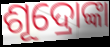
ଶୂଦ୍ରୋଙ୍କା